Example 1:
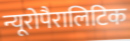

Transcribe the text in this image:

न्यूरोपैरालिटिक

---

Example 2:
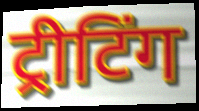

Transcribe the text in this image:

ट्रीटिंग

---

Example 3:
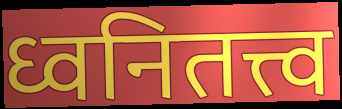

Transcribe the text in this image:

ध्वनितत्त्व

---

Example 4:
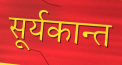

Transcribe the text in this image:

सूर्यकान्त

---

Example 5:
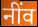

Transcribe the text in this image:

नींव